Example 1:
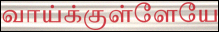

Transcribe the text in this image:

வாய்க்குள்ளேயே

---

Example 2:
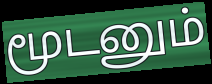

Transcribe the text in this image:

மூடனும்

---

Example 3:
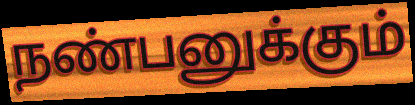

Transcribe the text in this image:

நண்பனுக்கும்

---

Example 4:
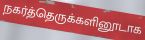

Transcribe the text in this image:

நகர்த்தெருக்களினூடாக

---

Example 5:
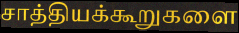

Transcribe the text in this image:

சாத்தியக்கூறுகளை